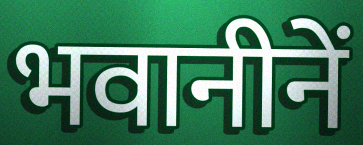
भवानीनें